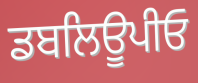
ਡਬਲਿਊਪੀਓ